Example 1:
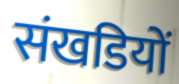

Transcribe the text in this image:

संखडियों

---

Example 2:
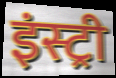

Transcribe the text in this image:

इंस्ट्री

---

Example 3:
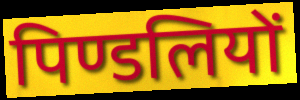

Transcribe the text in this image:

पिण्डलियों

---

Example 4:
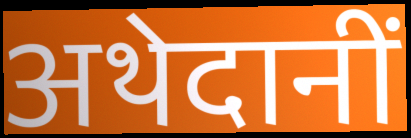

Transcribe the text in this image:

अथेदानीं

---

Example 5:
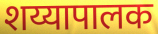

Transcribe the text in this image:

शय्यापालक